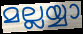
മല്ലയ്യാ